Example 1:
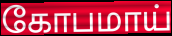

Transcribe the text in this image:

கோபமாய்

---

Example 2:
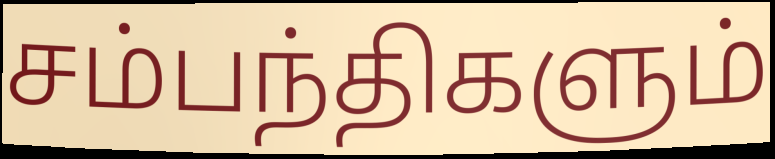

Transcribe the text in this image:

சம்பந்திகளும்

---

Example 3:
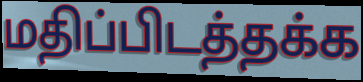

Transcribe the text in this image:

மதிப்பிடத்தக்க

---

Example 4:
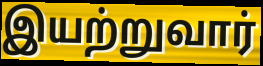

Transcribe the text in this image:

இயற்றுவார்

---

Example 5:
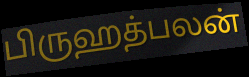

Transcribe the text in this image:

பிருஹத்பலன்